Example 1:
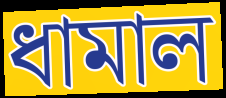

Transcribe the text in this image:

ধামাল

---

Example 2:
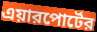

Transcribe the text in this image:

এয়ারপোর্টের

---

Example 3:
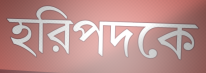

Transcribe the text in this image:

হরিপদকে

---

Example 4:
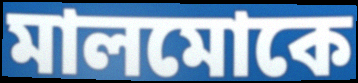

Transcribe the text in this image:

মালমোকে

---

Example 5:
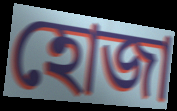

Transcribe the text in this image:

হোজা